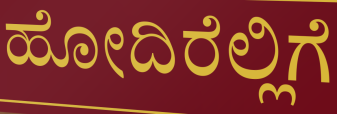
ಹೋದಿರೆಲ್ಲಿಗೆ